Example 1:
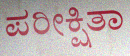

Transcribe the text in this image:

ಪರೀಕ್ಷಿತಾ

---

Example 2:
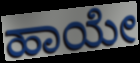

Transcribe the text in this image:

ಹಾಯೇ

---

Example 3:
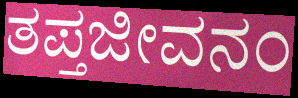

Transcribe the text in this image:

ತಪ್ತಜೀವನಂ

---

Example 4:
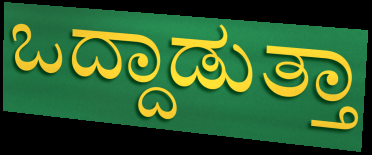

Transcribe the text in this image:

ಒದ್ದಾಡುತ್ತಾ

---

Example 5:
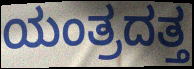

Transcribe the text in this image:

ಯಂತ್ರದತ್ತ